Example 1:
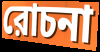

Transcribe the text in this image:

রোচনা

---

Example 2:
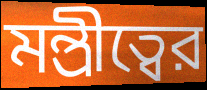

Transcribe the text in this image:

মন্ত্রীত্বের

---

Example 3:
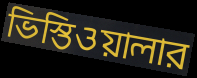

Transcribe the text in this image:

ভিস্তিওয়ালার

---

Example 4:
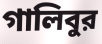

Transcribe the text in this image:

গালিবুর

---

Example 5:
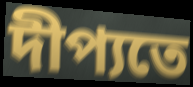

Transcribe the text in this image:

দীপ্যতে